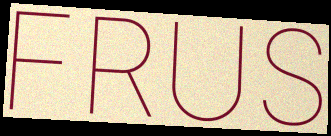
FRUS